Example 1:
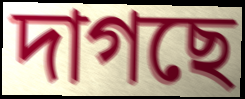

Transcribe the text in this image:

দাগছে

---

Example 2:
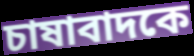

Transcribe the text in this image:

চাষাবাদকে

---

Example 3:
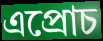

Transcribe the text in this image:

এপ্রোচ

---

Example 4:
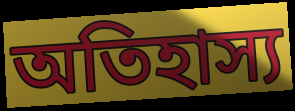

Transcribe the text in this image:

অতিহাস্য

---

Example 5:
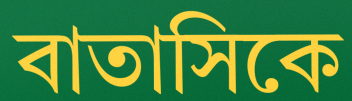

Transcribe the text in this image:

বাতাসিকে